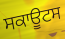
ਸਕਾਊਟਸ